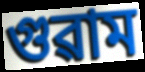
গুৱাম